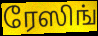
ரேஸிங்